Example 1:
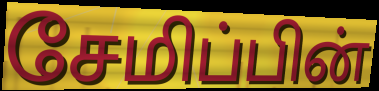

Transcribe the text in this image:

சேமிப்பின்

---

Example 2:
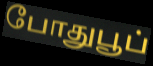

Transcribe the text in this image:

போதுபூப்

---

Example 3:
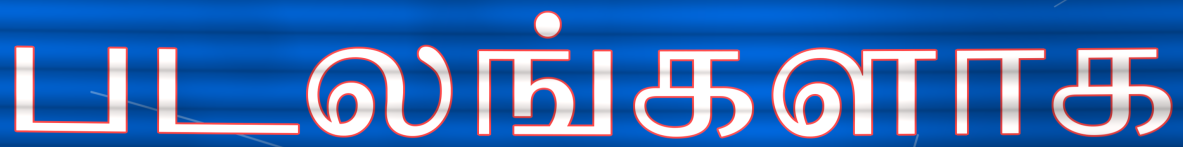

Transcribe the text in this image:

படலங்களாக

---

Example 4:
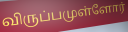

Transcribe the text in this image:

விருப்பமுள்ளோர்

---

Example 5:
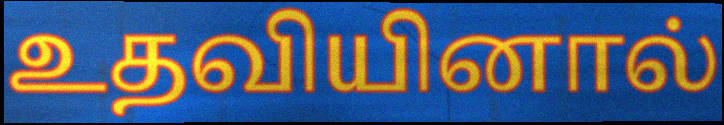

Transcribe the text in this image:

உதவியினால்